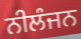
ਨੀਲੰਜਨ